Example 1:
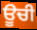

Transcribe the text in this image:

ਊਚੀ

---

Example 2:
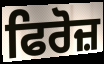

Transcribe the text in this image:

ਫਿਰੋਜ਼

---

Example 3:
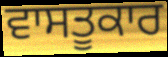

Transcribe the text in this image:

ਵਾਸਤੂਕਾਰ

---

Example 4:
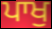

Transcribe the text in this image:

ਪਾਖੁ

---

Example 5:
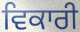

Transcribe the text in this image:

ਵਿਕਾਰੀ